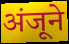
अंजूने